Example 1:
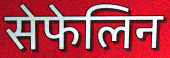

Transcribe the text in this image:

सेफेलिन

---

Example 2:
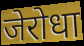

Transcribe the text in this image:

जेरोधा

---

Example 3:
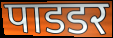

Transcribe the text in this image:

पाडडर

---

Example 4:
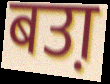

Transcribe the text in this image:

बउ़ा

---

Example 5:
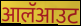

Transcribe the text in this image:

आलॅआउट